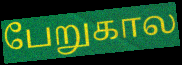
பேறுகால